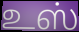
உஸ்